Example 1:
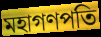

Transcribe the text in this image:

মহাগণপতি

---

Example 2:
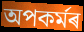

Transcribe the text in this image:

অপকৰ্মৰ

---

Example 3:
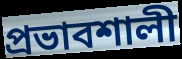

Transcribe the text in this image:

প্ৰভাবশালী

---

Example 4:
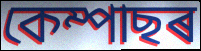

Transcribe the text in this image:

কেম্পাছৰ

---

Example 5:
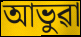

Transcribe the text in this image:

আভুৱা